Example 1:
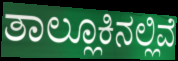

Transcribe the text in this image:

ತಾಲ್ಲೂಕಿನಲ್ಲಿವೆ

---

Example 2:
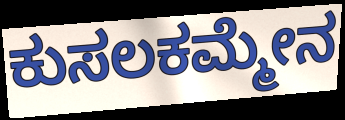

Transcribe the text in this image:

ಕುಸಲಕಮ್ಮೇನ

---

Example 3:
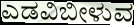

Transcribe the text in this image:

ಎಡವಿಬೀಳುವ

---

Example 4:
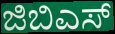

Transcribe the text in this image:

ಜಿಬಿಎಸ್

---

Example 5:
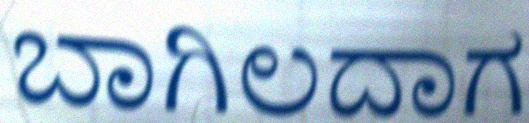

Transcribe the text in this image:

ಬಾಗಿಲದಾಗ